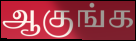
ஆகுங்க